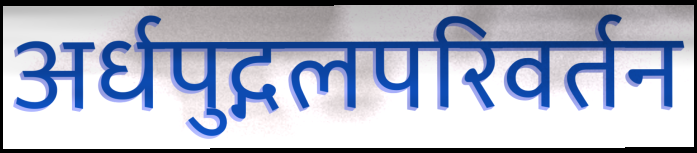
अर्धपुद्गलपरिवर्तन